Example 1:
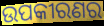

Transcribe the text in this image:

ଉପକୀରଣର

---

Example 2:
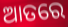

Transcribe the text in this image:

ଆତରେ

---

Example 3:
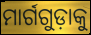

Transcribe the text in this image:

ମାର୍ଗଗୁଡ଼ାକୁ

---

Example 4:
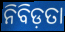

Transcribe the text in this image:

ନିବିଡ଼ତା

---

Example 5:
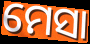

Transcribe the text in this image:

ମେସା